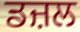
ਡਜ਼ਲ